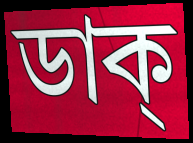
ডাক্